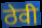
ठेवी